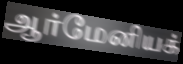
ஆர்மேனியக்